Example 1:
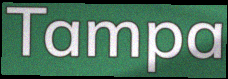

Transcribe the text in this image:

Tampa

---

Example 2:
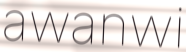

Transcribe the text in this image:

awanwi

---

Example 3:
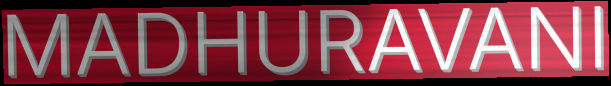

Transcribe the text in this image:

MADHURAVANI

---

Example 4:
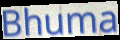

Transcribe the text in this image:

Bhuma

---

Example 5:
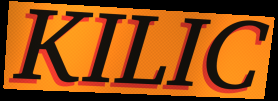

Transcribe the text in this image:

KILIC